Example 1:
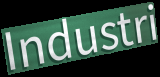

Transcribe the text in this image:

Industri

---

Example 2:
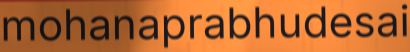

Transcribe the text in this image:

mohanaprabhudesai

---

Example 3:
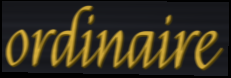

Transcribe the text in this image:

ordinaire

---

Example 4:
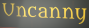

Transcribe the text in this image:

Uncanny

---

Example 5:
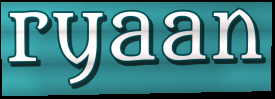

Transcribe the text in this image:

ryaan